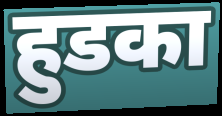
हुडका